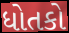
ધોતકો